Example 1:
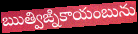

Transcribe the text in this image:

ఋత్విఙ్నికాయంబును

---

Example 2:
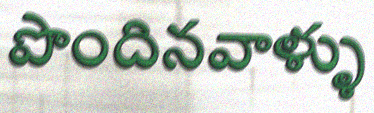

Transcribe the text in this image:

పొందినవాళ్ళు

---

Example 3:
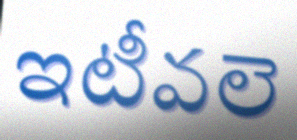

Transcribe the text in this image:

ఇటీవలె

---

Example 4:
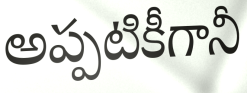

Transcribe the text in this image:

అప్పటికీగానీ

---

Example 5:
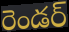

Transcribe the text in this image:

రెండర్